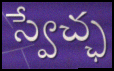
స్వేచ్ఛ